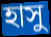
হাসু